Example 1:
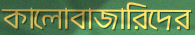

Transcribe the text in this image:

কালোবাজারিদের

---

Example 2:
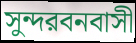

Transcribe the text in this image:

সুন্দরবনবাসী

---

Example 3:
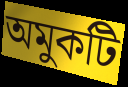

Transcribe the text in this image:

অমুকটি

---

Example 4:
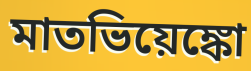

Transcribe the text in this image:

মাতভিয়েঙ্কো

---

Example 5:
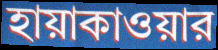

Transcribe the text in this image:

হায়াকাওয়ার